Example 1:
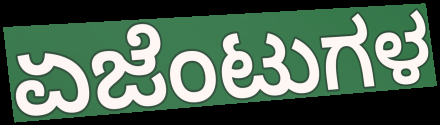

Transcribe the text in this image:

ಏಜೆಂಟುಗಳ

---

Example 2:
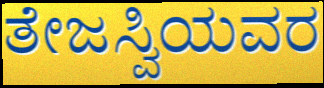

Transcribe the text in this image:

ತೇಜಸ್ವಿಯವರ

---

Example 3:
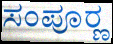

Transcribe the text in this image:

ಸಂಪೂರ್‍ಣ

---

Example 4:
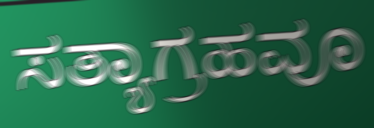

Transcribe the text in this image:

ಸತ್ಯಾಗ್ರಹವೂ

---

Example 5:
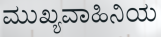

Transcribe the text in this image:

ಮುಖ್ಯವಾಹಿನಿಯ